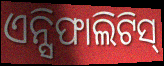
ଏନ୍ସିଫାଲିଟିସ୍